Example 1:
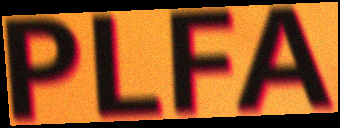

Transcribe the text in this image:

PLFA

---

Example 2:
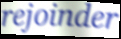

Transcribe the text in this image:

rejoinder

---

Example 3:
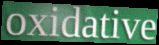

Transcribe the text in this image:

oxidative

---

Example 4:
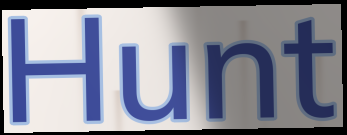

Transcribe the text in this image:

Hunt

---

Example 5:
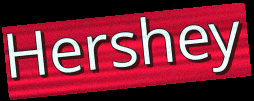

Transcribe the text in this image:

Hershey